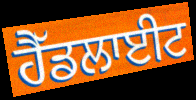
ਹੈੱਡਲਾਈਟ